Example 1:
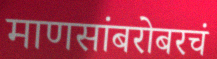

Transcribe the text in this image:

माणसांबरोबरचं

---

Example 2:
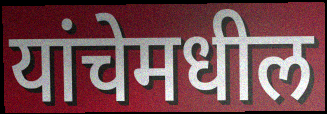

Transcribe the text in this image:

यांचेमधील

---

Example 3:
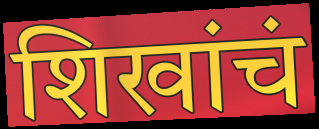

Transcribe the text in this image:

शिखांचं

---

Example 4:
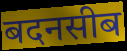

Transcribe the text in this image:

बदनसीब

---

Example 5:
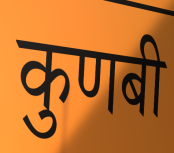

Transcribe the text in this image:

कुणबी